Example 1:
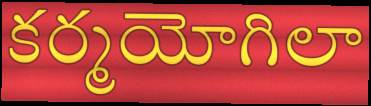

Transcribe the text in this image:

కర్మయోగిలా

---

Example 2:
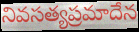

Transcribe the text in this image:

నివసత్యప్రమాదేన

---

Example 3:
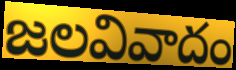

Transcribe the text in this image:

జలవివాదం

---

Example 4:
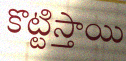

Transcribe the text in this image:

కొట్టిస్తాయి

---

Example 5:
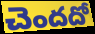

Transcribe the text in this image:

చెందదో